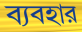
ব্যবহার